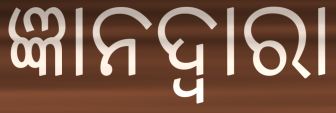
ଜ୍ଞାନଦ୍ଵାରା